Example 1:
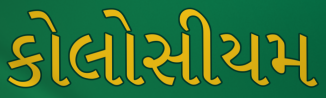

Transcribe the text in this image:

કોલોસીયમ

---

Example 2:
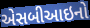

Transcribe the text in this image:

એસબીઆઇનો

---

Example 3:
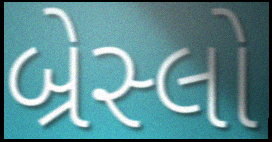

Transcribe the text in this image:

બ્રેસ્લો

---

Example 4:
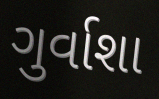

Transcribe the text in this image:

ગુર્વાશા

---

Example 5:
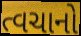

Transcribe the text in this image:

ત્વચાનો